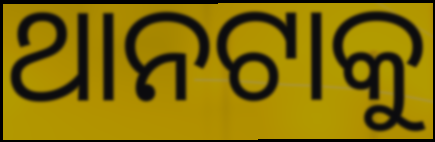
ଥାନଟାକୁ